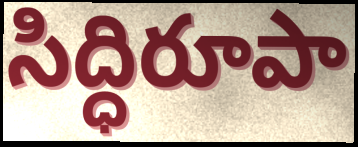
సిద్ధిరూపా